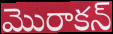
మొరాకన్